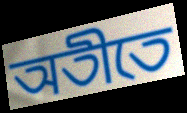
অতীতে